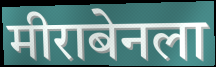
मीराबेनला